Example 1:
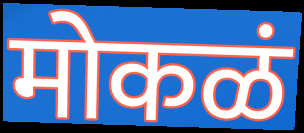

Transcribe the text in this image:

मोकळं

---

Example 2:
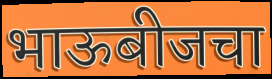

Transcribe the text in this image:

भाऊबीजचा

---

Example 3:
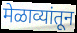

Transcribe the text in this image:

मेळाव्यांतून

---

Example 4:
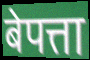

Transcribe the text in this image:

बेपत्ता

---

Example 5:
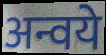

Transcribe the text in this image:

अन्वये